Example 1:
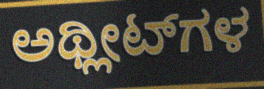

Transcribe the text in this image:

ಅಥ್ಲೀಟ್‌ಗಳ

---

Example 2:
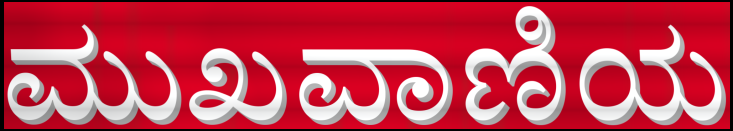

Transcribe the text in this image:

ಮುಖವಾಣಿಯ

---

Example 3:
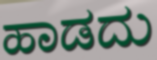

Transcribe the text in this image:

ಹಾಡದು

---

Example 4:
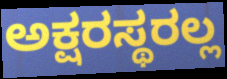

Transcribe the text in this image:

ಅಕ್ಷರಸ್ಥರಲ್ಲ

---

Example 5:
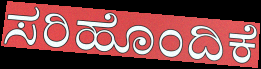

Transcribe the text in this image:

ಸರಿಹೊಂದಿಕೆ